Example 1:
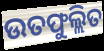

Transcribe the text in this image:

ଉତଫୁଲ୍ଲିତ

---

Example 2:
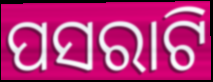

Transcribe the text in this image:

ପସରାଟି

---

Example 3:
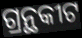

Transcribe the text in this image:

ଗ୍ରନ୍ଥକୀଟ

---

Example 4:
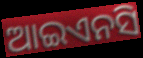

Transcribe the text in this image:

ଆଇଏନସି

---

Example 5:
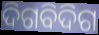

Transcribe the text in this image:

ଦିଗବିଦିଗ